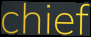
chief